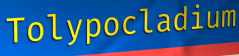
Tolypocladium